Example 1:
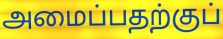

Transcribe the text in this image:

அமைப்பதற்குப்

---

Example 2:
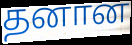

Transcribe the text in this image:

தனான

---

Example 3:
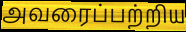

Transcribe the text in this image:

அவரைப்பற்றிய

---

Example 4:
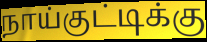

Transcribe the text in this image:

நாய்குட்டிக்கு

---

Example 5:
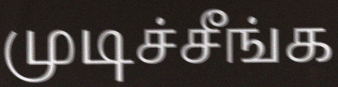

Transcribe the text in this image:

முடிச்சீங்க